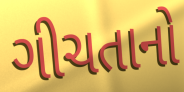
ગીચતાનો